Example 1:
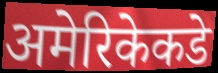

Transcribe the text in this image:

अमेरिकेकडे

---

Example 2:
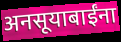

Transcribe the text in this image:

अनसूयाबाईंना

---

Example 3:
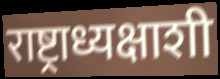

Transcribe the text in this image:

राष्ट्राध्यक्षाशी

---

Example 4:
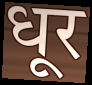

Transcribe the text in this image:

धूर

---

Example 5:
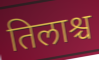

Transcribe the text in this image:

तिलाश्च